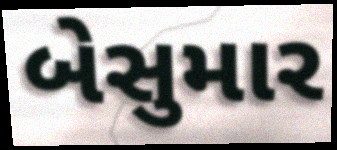
બેસુમાર